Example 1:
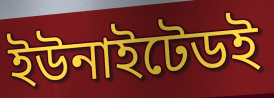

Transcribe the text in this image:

ইউনাইটেডই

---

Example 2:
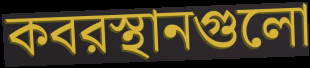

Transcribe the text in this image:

কবরস্থানগুলো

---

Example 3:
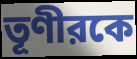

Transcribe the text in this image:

তূণীরকে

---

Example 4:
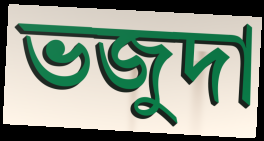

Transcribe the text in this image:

ভজুদা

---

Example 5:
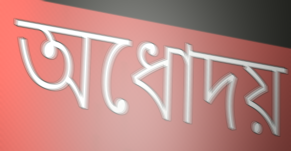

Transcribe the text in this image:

অধোদয়